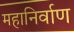
महानिर्वाण